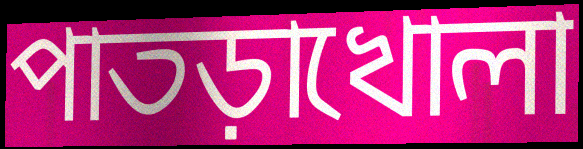
পাতড়াখোলা